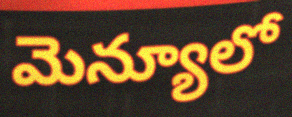
మెన్యూలో